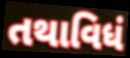
તથાવિધં